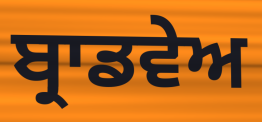
ਬ੍ਰਾਡਵੇਅ